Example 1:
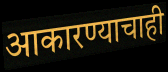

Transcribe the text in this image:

आकारण्याचाही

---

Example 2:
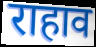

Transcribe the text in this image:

राहाव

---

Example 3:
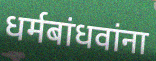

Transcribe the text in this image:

धर्मबांधवांना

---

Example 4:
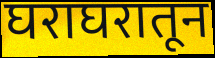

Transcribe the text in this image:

घराघरातून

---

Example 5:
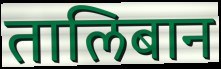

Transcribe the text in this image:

तालिबान